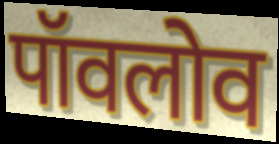
पॉवलोव